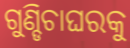
ଗୁଣ୍ଡିଚାଘରକୁ